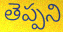
తెప్పని